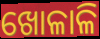
ଖୋଳାଳି